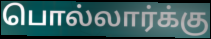
பொல்லார்க்கு